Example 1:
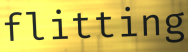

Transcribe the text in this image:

flitting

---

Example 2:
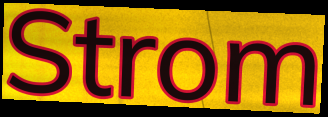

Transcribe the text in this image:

Strom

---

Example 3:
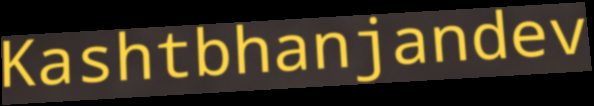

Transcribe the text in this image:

Kashtbhanjandev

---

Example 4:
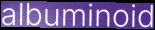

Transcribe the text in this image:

albuminoid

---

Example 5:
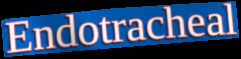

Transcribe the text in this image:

Endotracheal